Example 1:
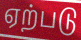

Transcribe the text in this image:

ஏற்படு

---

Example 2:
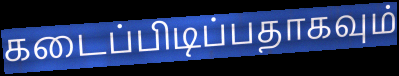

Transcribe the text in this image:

கடைப்பிடிப்பதாகவும்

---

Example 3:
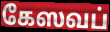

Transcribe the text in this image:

கேஸவப்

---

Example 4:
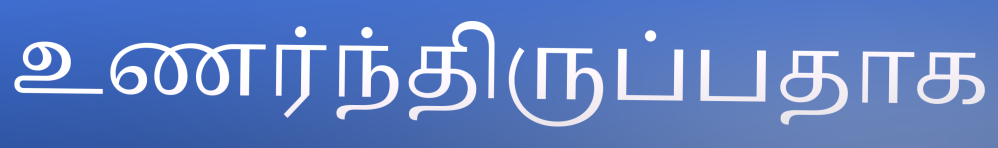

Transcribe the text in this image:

உணர்ந்திருப்பதாக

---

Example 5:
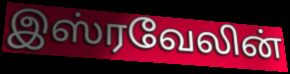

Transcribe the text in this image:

இஸ்ரவேலின்